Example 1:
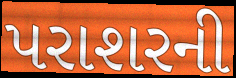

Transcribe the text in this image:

પરાશરની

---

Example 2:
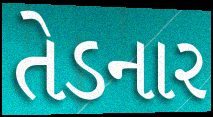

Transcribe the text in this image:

તેડનાર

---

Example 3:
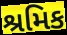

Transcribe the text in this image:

શ્રમિક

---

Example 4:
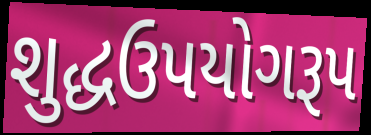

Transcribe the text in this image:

શુદ્ધઉપયોગરૂપ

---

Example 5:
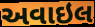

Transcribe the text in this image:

અવાઇલ